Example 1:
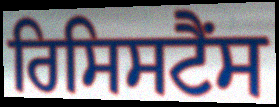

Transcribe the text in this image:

ਰਿਸਿਸਟੈਂਸ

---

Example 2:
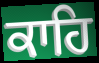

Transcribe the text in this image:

ਕਾਹਿ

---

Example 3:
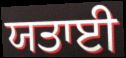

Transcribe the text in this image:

ਯਤਾਈ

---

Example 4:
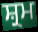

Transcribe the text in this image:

ਸ਼੍ਰਮ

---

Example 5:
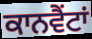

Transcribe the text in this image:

ਕਾਨਵੈਂਟਾਂ